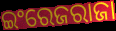
ଇଂରେଜରାଜା